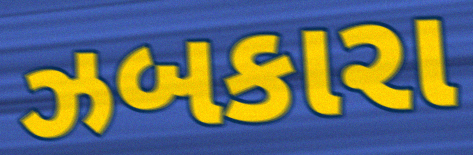
ઝબકારા